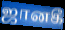
ஜானகீ